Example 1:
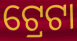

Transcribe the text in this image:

ଟ୍ରେଟା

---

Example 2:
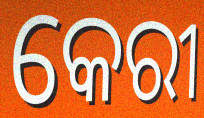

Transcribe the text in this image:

କେରୀ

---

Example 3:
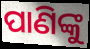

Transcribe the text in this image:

ପାଣିଙ୍କୁ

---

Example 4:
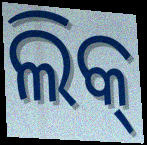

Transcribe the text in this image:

ଲିକ୍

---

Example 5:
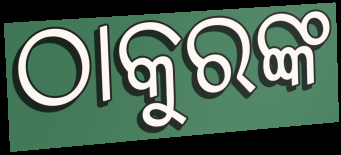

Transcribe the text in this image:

ଠାକୁରଙ୍କ